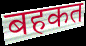
बहकत